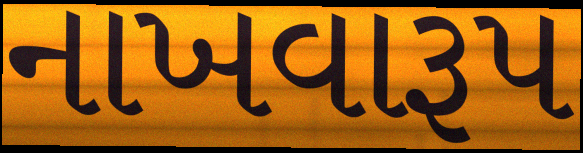
નાખવારૂપ